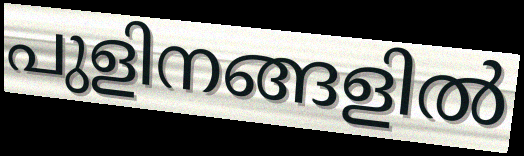
പുളിനങ്ങളിൽ